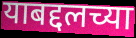
याबद्दलच्या